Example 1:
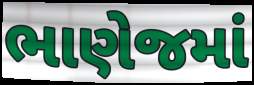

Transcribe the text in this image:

ભાણેજમાં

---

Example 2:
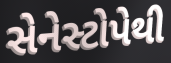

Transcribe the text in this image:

સેનેસ્ટોપેથી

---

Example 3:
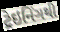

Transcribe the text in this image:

ટ્રેઇનિંગથી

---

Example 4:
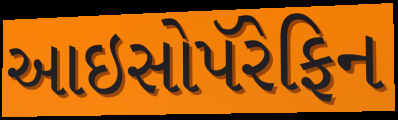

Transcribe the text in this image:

આઇસોપૅરેફિન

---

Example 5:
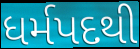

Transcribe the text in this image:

ધર્મપદથી